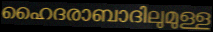
ഹൈദരാബാദിലുമുള്ള